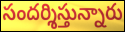
సందర్శిస్తున్నారు